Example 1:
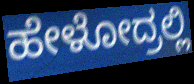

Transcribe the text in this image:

ಹೇಳೋದ್ರಲ್ಲಿ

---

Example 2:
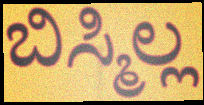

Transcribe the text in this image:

ಬಿಸ್ಮಿಲ್ಲ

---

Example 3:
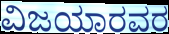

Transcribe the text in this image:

ವಿಜಯಾರವರ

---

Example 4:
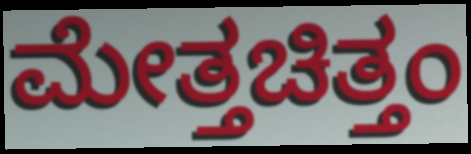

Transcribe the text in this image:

ಮೇತ್ತಚಿತ್ತಂ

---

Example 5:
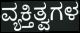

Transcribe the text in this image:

ವ್ಯಕ್ತಿತ್ವಗಳ